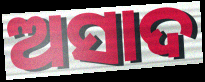
ଅସାଦ